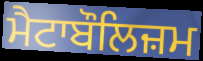
ਮੈਟਾਬੌਲਿਜ਼ਮ